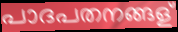
പാദപതനങ്ങള്